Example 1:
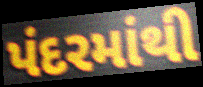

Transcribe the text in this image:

પંદરમાંથી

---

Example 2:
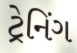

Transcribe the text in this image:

ટ્રેનિંગ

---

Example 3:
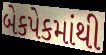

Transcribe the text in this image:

બેકપેકમાંથી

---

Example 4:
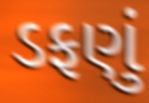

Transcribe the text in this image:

ડફણું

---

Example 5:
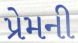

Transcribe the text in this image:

પ્રેમની